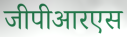
जीपीआरएस